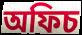
অফিচ